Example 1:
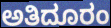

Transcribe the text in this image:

ಅತಿದೂರಂ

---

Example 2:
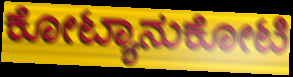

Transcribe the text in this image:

ಕೋಟ್ಯಾನುಕೋಟಿ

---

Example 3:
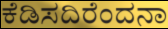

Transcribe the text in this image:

ಕೆಡಿಸದಿರೆಂದನಾ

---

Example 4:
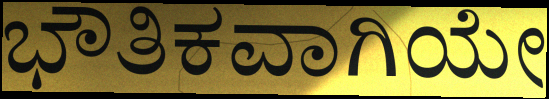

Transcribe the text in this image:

ಭೌತಿಕವಾಗಿಯೇ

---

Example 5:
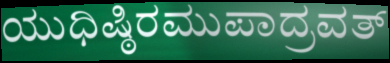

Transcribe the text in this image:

ಯುಧಿಷ್ಠಿರಮುಪಾದ್ರವತ್